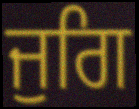
ਜੁਗਿ